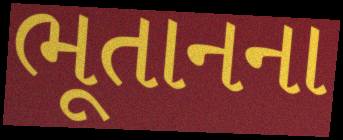
ભૂતાનના